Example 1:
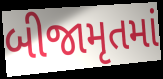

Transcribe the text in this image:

બીજામૃતમાં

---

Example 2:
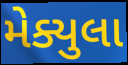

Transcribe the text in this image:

મેક્યુલા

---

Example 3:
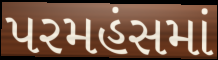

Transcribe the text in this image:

પરમહંસમાં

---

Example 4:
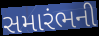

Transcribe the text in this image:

સમારંભની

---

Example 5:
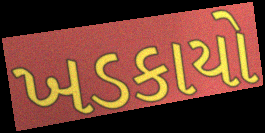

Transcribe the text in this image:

ખડકાયો